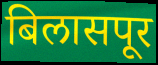
बिलासपूर